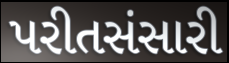
પરીતસંસારી